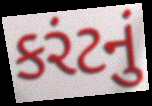
કરંટનું